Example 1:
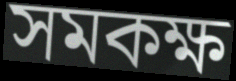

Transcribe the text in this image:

সমকক্ষ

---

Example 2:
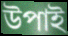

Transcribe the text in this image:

উপাই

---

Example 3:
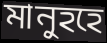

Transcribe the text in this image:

মানুহহে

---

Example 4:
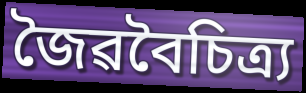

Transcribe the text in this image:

জৈৱবৈচিত্ৰ্য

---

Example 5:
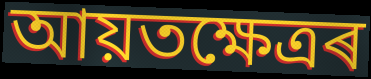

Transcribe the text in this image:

আয়তক্ষেত্ৰৰ